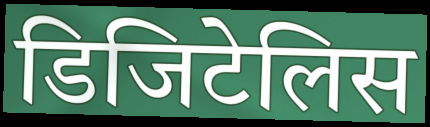
डिजिटेलिस